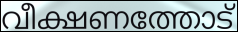
വീക്ഷണത്തോട്